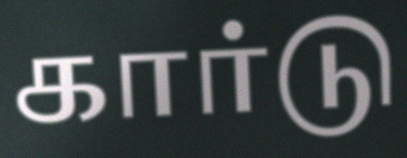
கார்டு